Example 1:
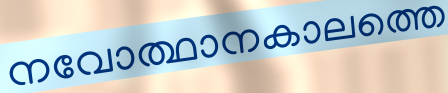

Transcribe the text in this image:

നവോത്ഥാനകാലത്തെ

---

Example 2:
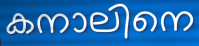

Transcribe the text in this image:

കനാലിനെ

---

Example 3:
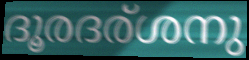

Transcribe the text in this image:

ദൂരദര്ശനു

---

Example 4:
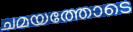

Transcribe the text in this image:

ചമയത്തോടെ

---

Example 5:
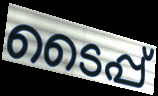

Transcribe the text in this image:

ടൈപ്പ്